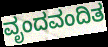
ವೃಂದವಂದಿತ